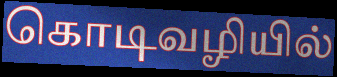
கொடிவழியில்